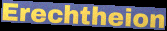
Erechtheion